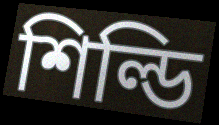
শিল্ডি